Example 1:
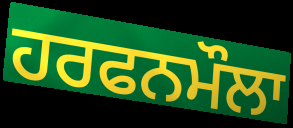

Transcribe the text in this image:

ਹਰਫਨਮੌਲਾ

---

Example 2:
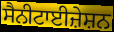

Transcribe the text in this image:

ਸੈਨੀਟਾਈਜ਼ੇਸ਼ਨ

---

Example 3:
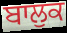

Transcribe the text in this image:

ਬਾਲੁਕ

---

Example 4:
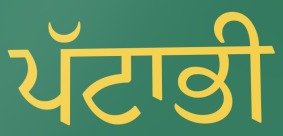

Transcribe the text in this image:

ਪੱਟਾਭੀ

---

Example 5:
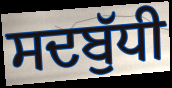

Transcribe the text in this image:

ਸਦਬੁੱਧੀ